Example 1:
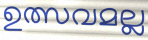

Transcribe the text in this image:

ഉത്സവമല്ല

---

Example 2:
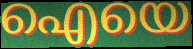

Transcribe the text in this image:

ഐയെ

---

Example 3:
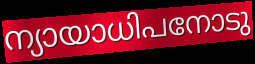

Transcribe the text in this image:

ന്യായാധിപനോടു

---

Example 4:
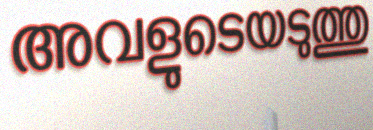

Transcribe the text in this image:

അവളുടെയടുത്തു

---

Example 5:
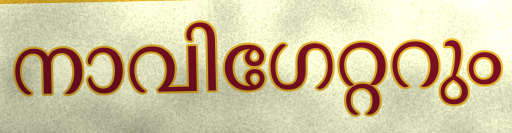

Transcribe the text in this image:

നാവിഗേറ്ററും